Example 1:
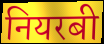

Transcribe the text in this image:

नियरबी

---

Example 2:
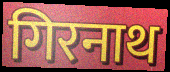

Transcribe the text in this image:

गिरनाथ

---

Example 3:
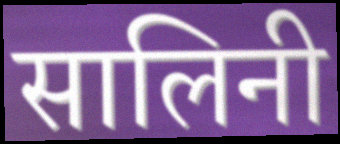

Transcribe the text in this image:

सालिनी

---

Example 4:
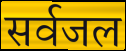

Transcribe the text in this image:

सर्वजल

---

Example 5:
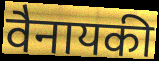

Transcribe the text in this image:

वैनायकी